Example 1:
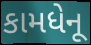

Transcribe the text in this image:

કામધેનૂ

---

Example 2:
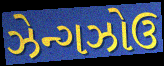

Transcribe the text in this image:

ઝેન્ગઝોઉ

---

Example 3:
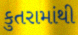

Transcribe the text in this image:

કુતરામાંથી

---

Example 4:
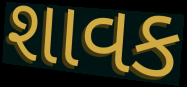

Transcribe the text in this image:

શાવક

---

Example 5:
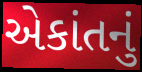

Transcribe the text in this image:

એકાંતનું